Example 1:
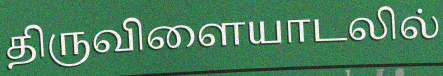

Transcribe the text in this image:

திருவிளையாடலில்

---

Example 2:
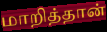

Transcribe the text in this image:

மாறித்தான்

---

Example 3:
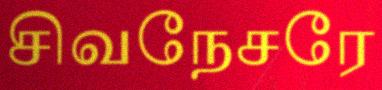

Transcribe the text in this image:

சிவநேசரே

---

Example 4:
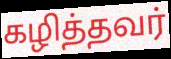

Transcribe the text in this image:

கழித்தவர்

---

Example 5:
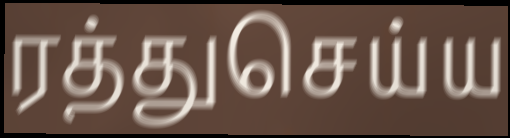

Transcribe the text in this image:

ரத்துசெய்ய